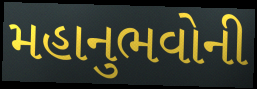
મહાનુભવોની